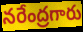
నరేంద్రగారు